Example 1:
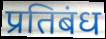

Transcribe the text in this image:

प्रतिबंध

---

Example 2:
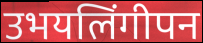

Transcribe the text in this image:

उभयलिंगीपन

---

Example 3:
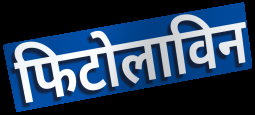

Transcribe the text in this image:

फिटोलाविन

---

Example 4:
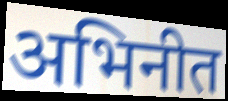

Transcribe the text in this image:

अभिनीत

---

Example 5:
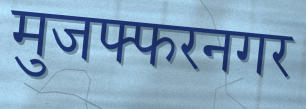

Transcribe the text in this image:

मुजफ्फरनगर